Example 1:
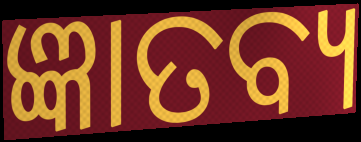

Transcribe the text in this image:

ଜ୍ଞାତବ୍ୟ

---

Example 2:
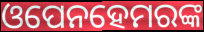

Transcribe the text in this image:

ଓପେନହେମରଙ୍କ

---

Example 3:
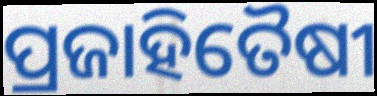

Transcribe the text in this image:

ପ୍ରଜାହିତୈଷୀ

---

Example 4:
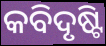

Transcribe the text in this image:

କବିଦୃଷ୍ଟି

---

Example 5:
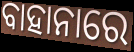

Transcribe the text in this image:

ବାହାନାରେ